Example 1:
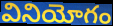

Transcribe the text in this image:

వినియోగం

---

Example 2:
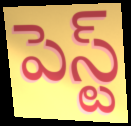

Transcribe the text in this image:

పెస్ట్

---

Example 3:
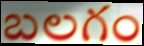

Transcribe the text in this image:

బలగం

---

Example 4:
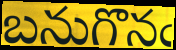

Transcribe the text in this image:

బనుగొనఁ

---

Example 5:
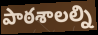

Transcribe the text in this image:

పాఠశాలల్ని